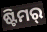
ଷ୍ଟିମର୍